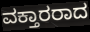
ವಕ್ತಾರರಾದ